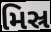
મિસ્ર